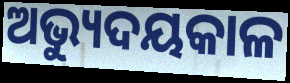
ଅଭ୍ୟୁଦୟକାଳ